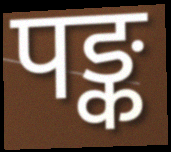
पङ्क